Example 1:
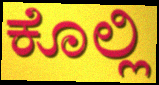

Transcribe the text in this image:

ಕೊಲ್ಲಿ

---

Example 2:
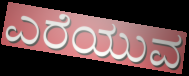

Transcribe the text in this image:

ಎರೆಯುವ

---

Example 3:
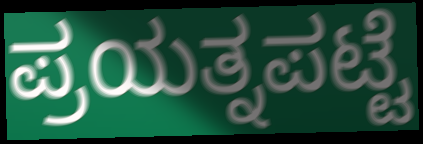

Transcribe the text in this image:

ಪ್ರಯತ್ನಪಟ್ಟೆ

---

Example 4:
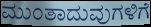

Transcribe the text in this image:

ಮುಂತಾದುವುಗಳಿಗೆ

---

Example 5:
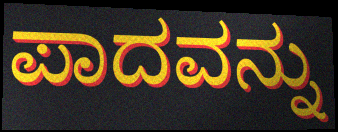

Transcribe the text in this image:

ಪಾದವನ್ನು